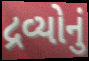
દ્રવ્યોનું